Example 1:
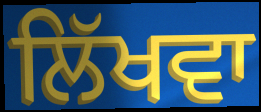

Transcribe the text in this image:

ਲਿੱਖਵਾ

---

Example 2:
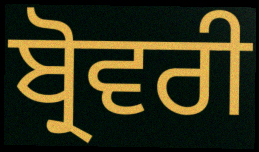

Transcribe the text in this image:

ਬ੍ਰੋਵਰੀ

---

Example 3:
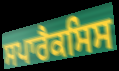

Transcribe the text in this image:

ਸਪਾਰੈਕਸਿਸ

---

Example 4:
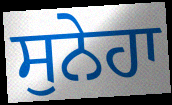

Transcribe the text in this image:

ਸੁਨੇਹਾ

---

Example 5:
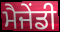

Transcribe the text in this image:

ਮੈਜੇਂਡੀ